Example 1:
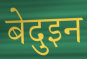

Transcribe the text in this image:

बेदुइन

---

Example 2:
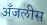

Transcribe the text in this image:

अँजलीस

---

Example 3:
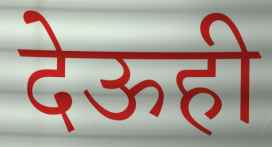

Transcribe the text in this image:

देऊही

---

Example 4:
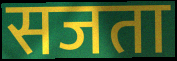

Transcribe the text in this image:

सजता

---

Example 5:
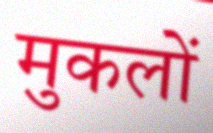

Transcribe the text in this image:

मुकलों